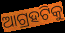
ଆଗ୍ରହଟିକୁ